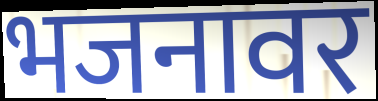
भजनावर